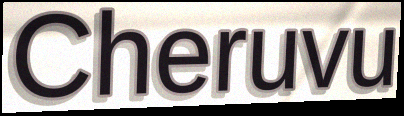
Cheruvu